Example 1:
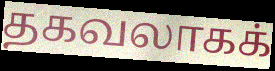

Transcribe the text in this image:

தகவலாகக்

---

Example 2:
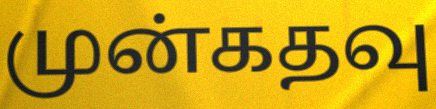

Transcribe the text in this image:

முன்கதவு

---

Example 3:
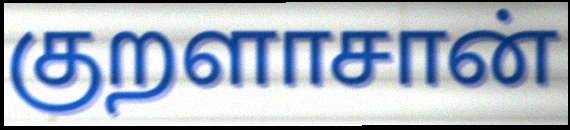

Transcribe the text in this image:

குறளாசான்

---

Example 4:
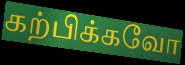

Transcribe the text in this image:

கற்பிக்கவோ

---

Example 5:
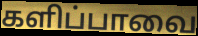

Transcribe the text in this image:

களிப்பாவை